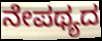
ನೇಪಥ್ಯದ